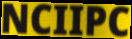
NCIIPC